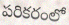
పరికరంలో